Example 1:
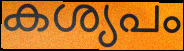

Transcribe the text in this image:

കശ്യപം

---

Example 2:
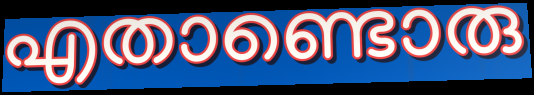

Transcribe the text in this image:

എതാണ്ടൊരു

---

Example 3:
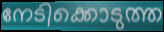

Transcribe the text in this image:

നേടിക്കൊടുത്ത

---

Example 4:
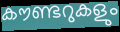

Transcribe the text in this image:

കൗണ്ടറുകളും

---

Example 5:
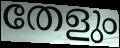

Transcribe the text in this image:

തേളും